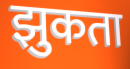
झुकता